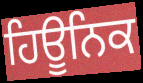
ਹਿਊਨਿਕ